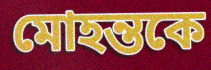
মোহন্তকে